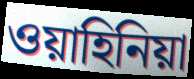
ওয়াহিনিয়া